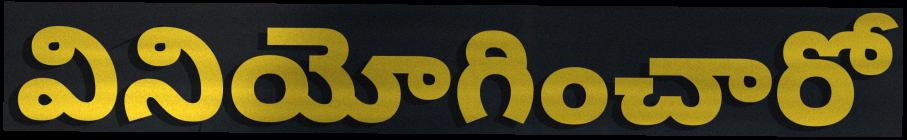
వినియోగించారో